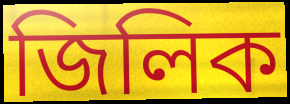
জিলিক